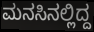
ಮನಸಿನಲ್ಲಿದ್ದ